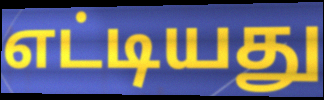
எட்டியது